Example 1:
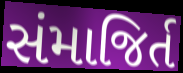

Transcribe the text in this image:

સંમાજિર્ત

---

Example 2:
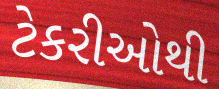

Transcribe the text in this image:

ટેકરીઓથી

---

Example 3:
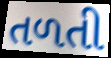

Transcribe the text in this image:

તળતી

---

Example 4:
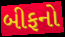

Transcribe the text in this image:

બીફનો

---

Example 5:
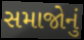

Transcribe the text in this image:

સમાજોનું